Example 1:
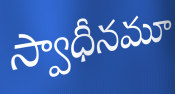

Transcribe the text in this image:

స్వాధీనమూ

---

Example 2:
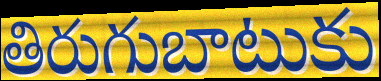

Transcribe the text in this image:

తిరుగుబాటుకు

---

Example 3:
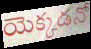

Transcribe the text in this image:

యెక్కడనో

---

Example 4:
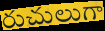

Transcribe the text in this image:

రుచులుగా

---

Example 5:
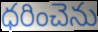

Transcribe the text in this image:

ధరించెను